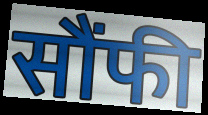
सौंफी